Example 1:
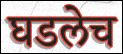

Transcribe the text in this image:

घडलेच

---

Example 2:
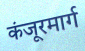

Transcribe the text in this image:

कंजूरमार्ग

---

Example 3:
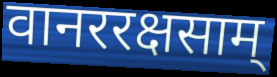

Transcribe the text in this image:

वानररक्षसाम्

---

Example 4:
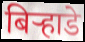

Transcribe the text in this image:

बिऱ्हाडे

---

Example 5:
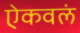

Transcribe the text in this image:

ऐकवलं